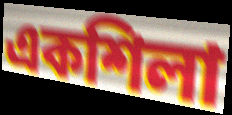
একশিলা